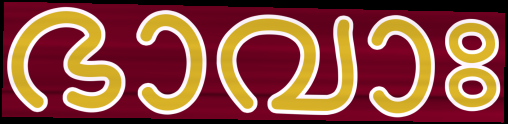
ഭാവാഃ